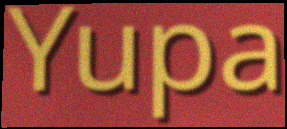
Yupa